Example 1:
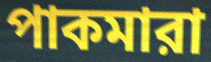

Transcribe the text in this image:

পাকমারা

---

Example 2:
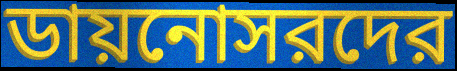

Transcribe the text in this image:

ডায়নোসরদের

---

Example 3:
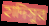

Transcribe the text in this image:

হাদিসুর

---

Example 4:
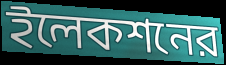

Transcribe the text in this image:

ইলেকশনের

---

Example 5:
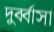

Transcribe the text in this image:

দুর্ব্বাসা